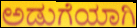
ಅಡುಗೆಯಾಗಿ